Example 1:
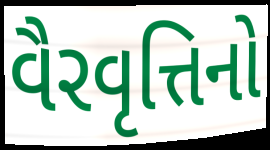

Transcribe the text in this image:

વૈરવૃત્તિનો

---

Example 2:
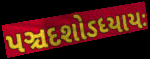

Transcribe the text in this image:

પઞ્ચદશોઽધ્યાયઃ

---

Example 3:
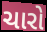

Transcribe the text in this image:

ચારો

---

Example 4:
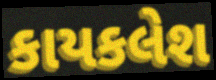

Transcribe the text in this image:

કાયકલેશ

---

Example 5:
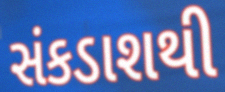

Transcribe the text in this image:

સંકડાશથી